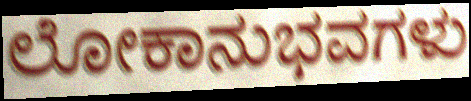
ಲೋಕಾನುಭವಗಳು